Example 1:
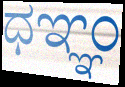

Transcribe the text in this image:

ಧಞ್ಞಂ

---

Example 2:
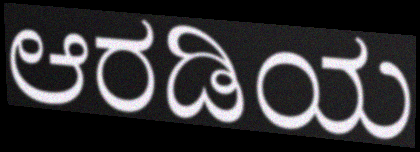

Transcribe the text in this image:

ಆರಡಿಯ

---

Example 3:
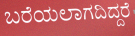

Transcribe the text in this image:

ಬರೆಯಲಾಗದಿದ್ದರೆ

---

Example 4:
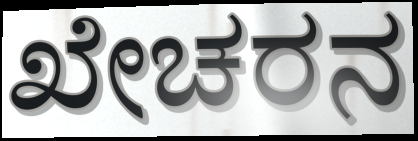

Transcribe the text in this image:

ಖೇಚರನ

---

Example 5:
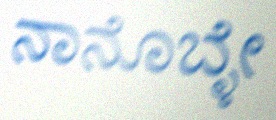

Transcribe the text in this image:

ನಾನೊಬ್ಳೇ